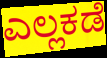
ಎಲ್ಲಕಡೆ